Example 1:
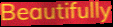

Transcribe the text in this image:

Beautifully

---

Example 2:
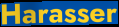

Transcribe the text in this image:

Harasser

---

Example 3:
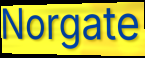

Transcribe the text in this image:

Norgate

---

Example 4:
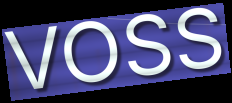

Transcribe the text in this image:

VOSS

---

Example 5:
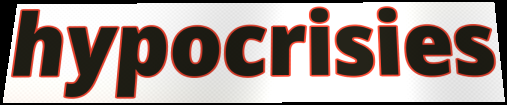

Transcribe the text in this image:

hypocrisies